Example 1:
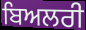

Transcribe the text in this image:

ਬਿਅਲਰੀ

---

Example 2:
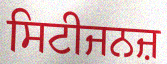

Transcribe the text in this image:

ਸਿਟੀਜਨਜ਼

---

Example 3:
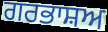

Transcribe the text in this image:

ਗਰਭਾਸ਼ਅ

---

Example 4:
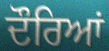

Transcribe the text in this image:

ਦੌਰਿਆਂ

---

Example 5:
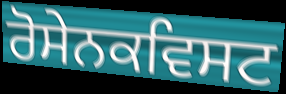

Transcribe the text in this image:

ਰੋਸੇਨਕਵਿਸਟ